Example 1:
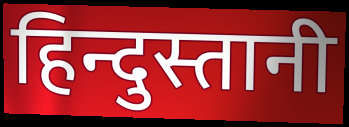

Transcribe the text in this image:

हिन्दुस्तानी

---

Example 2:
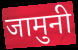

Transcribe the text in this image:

जामुनी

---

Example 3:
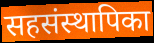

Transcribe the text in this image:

सहसंस्थापिका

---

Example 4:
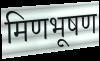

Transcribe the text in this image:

मिणभूषण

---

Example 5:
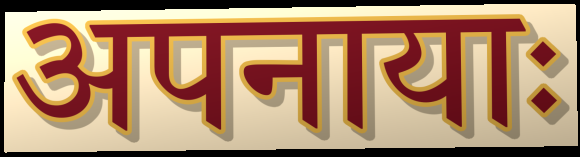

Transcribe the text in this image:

अपनायाः